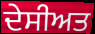
ਦੇਸੀਅਤ